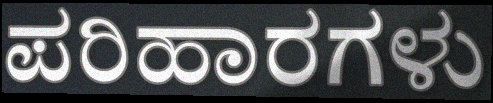
ಪರಿಹಾರಗಳು